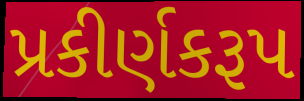
પ્રકીર્ણકરૂપ